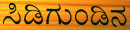
ಸಿಡಿಗುಂಡಿನ